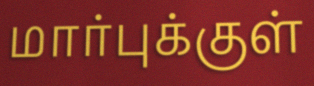
மார்புக்குள்